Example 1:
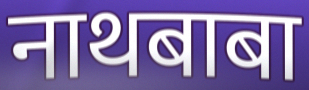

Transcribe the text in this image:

नाथबाबा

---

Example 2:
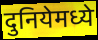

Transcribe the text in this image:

दुनियेमध्ये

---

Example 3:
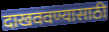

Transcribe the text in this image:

दाखववण्यासाठी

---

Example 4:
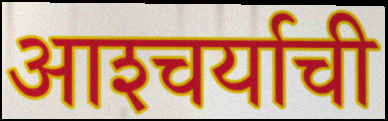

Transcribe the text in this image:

आश्‍चर्याची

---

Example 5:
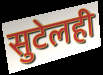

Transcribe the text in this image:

सुटेलही